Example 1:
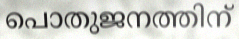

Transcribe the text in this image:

പൊതുജനത്തിന്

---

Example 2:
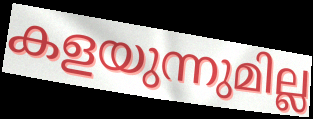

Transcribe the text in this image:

കളയുന്നുമില്ല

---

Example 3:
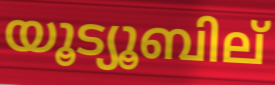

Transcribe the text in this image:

യൂട്യൂബില്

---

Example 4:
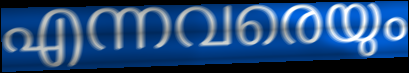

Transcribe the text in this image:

എന്നവരെയും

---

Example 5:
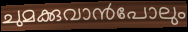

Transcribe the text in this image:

ചുമക്കുവാൻപോലും